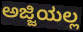
ಅಜ್ಜಿಯಲ್ಲ